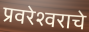
प्रवरेश्वराचे